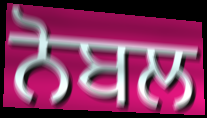
ਨੋਬਲ